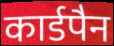
कार्डपैन